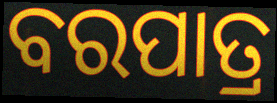
ବରପାତ୍ର